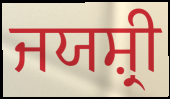
ਜਯਸ਼੍ਰੀ